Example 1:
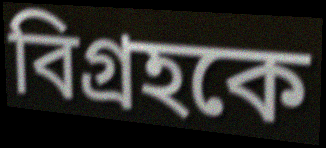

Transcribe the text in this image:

বিগ্রহকে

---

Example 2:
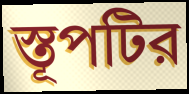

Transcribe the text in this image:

স্তূপটির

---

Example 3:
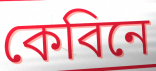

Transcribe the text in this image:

কেবিনে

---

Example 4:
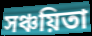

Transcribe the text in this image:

সঞ্চয়িতা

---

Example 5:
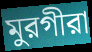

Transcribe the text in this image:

মুরগীরা